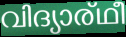
വിദ്യാര്ഥീ